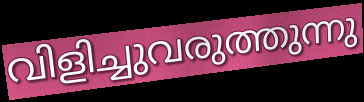
വിളിച്ചുവരുത്തുന്നു